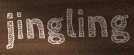
jingling